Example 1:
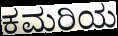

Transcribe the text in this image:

ಕಮರಿಯ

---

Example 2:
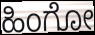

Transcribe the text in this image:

ಹಿಂಗೋ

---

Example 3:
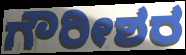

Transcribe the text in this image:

ಗೌರೀಶರ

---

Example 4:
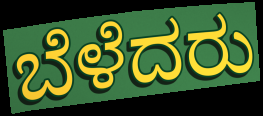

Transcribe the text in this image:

ಬೆಳೆದರು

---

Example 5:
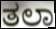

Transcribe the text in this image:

ತಲಾ